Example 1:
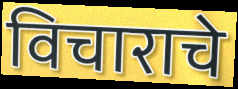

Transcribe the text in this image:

विचाराचे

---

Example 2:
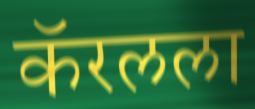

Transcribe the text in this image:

कॅरलला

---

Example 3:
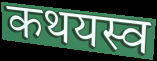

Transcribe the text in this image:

कथयस्व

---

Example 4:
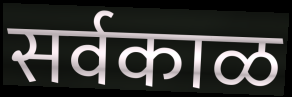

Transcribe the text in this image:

सर्वकाळ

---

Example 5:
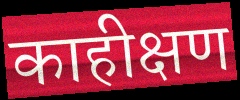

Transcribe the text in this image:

काहीक्षण